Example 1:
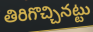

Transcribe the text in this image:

తిరిగొచ్చినట్టు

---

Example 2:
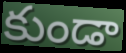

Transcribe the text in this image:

కుండా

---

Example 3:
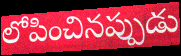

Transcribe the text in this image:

లోపించినప్పుడు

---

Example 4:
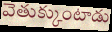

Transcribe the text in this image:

వెతుక్కుంటాడు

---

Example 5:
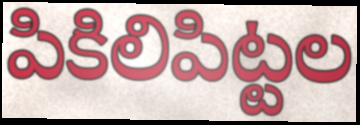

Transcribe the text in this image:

పికిలిపిట్టల